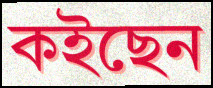
কইছেন